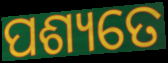
ପଶ୍ୟତେ